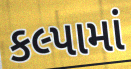
કલ્પામાં